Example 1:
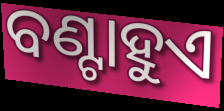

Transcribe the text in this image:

ବଣ୍ଟାହୁଏ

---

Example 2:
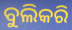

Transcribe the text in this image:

ବୁଲିକରି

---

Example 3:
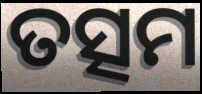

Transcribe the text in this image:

ତତ୍ସମ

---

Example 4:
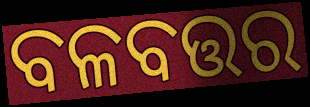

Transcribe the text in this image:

ବଳବତ୍ତର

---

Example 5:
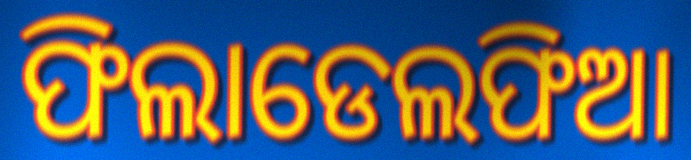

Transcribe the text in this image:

ଫିଲାଡେଲଫିଆ